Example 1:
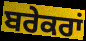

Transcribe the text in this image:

ਬਰੇਕਰਾਂ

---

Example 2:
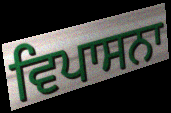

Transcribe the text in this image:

ਵਿਪਾਸਨਾ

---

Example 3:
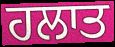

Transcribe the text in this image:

ਹਲਾਤ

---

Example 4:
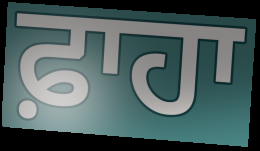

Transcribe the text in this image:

ਫ਼ਾਹਾ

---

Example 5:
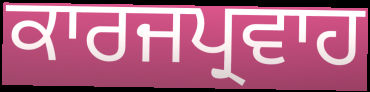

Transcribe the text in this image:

ਕਾਰਜਪ੍ਰਵਾਹ